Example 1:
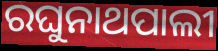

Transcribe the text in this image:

ରଘୁନାଥପାଲୀ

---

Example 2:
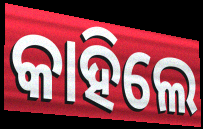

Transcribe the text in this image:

କାହିଲେ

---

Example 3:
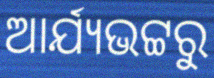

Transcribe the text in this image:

ଆର୍ଯ୍ୟଭଟ୍ଟରୁ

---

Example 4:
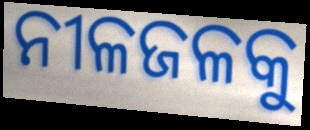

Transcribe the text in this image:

ନୀଳଜଳକୁ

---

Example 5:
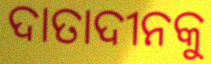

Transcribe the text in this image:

ଦାତାଦୀନକୁ